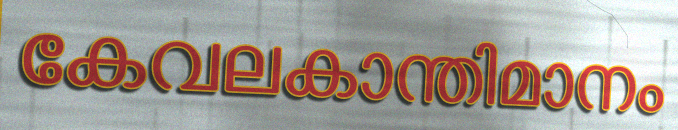
കേവലകാന്തിമാനം